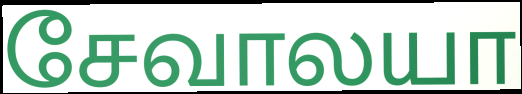
சேவாலயா